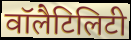
वॉलैटिलिटी